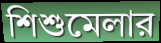
শিশুমেলার